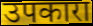
उपकारा